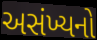
અસંખ્યનો